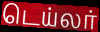
டெய்லர்